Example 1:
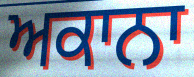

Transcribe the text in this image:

ਅਕਾਨਾ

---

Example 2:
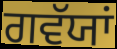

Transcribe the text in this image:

ਗਵੱਯਾਂ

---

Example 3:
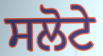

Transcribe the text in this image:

ਸਲੋਟੇ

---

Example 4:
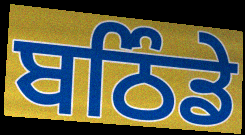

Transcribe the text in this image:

ਬਠਿੰਡੇ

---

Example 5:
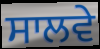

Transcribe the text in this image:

ਸਾਲਵੇ